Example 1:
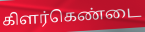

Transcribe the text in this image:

கிளர்கெண்டை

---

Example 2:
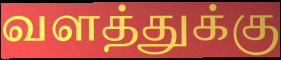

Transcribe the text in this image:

வளத்துக்கு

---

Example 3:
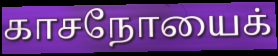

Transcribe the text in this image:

காசநோயைக்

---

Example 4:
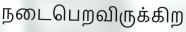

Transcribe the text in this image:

நடைபெறவிருக்கிற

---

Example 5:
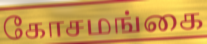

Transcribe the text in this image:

கோசமங்கை